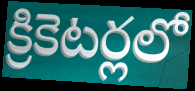
క్రికెటర్లలో